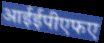
आईईपीएफए